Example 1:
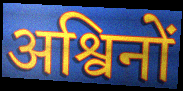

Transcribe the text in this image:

अश्विनों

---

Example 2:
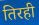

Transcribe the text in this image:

तिरही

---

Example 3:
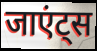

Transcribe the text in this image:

जाएंट्स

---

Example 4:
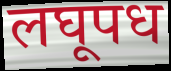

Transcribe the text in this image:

लघूपध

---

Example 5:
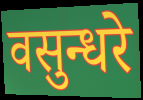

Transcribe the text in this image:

वसुन्धरे